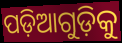
ପଡ଼ିଆଗୁଡ଼ିକୁ